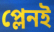
প্লেনই